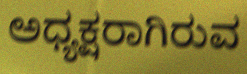
ಅಧ್ಯಕ್ಷರಾಗಿರುವ